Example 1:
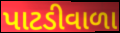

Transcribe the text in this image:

પાટડીવાળા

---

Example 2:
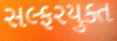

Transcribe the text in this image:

સલ્ફરયુક્ત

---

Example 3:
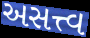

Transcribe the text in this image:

અસત્ત્વ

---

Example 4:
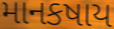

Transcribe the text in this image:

માનકષાય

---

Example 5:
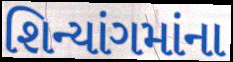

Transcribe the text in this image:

શિન્યાંગમાંના